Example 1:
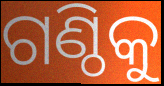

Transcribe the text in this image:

ଗଣ୍ଠିକୁ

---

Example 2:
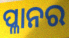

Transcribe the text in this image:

ପ୍ଳାନର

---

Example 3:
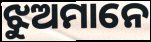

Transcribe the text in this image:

ଝୁଅମାନେ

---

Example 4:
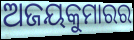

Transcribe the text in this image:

ଅଜୟକୁମାରର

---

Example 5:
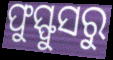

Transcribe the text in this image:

ଫୁସ୍ଫୁସରୁ